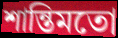
শান্তিমতো